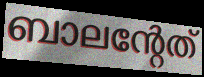
ബാലന്റേത്